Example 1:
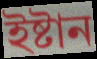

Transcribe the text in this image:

ইষ্টান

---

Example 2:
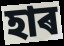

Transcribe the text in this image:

হাৰ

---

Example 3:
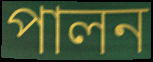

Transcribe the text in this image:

পালন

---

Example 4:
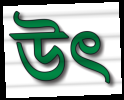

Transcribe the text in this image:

উৎ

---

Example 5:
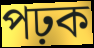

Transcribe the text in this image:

পঢ়ক